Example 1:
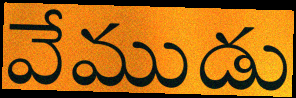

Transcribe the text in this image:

వేముడు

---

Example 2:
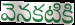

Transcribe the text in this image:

వెనకటికి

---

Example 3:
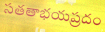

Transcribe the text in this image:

సతతాభయప్రదం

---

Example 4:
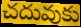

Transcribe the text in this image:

చదువుకు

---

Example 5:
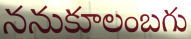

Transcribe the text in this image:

ననుకూలంబగు